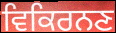
ਵਿਕਿਰਨਣ